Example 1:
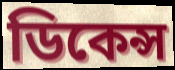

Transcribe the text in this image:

ডিকেন্স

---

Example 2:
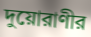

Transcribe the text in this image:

দুয়োরাণীর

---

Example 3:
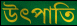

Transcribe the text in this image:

উৎপাতি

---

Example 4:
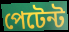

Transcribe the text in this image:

পেটেন্ট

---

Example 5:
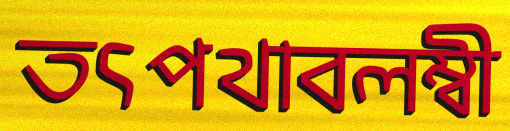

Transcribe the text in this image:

তৎপথাবলম্বী